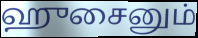
ஹுசைனும்